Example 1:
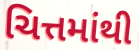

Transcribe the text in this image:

ચિત્તમાંથી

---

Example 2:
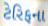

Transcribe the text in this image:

ટેરિફના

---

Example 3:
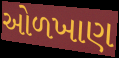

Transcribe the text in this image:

ઓળખાણ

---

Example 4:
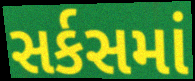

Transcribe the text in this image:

સર્કસમાં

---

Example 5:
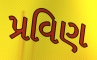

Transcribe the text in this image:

પ્રવિણ